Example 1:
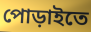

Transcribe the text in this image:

পোড়াইতে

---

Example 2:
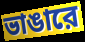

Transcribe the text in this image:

ভাঙারে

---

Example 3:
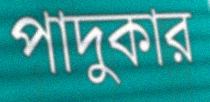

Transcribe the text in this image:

পাদুকার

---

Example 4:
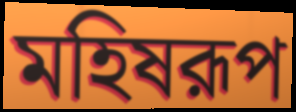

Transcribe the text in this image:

মহিষরূপ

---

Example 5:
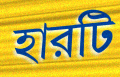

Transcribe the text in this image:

হারটি